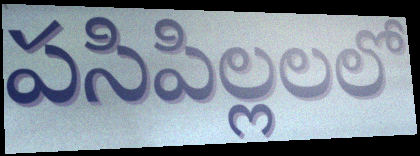
పసిపిల్లలలో